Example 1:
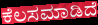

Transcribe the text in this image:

ಕೆಲಸಮಾಡಿದೆ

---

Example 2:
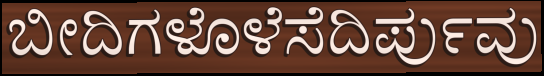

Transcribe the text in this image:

ಬೀದಿಗಳೊಳೆಸೆದಿರ್ಪುವು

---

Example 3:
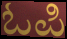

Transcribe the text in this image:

ಓಪಿ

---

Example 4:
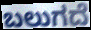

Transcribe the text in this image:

ಬಲುಗದೆ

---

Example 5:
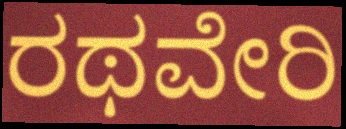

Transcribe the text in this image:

ರಥವೇರಿ